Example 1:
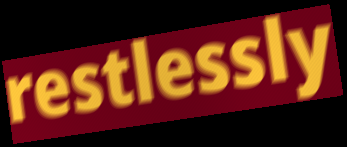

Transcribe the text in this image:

restlessly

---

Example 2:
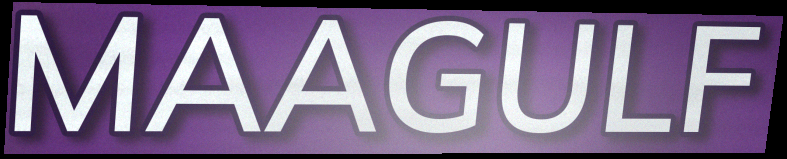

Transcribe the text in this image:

MAAGULF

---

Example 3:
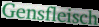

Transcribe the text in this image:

Gensfleisch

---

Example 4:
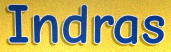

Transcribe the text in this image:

Indras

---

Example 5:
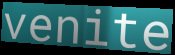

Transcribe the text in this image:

venite